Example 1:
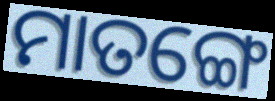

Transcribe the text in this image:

ମାତଙ୍ଗେ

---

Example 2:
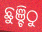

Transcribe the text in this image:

ଛୁଞ୍ଚିଠୁ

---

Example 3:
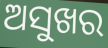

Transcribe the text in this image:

ଅସୁଖର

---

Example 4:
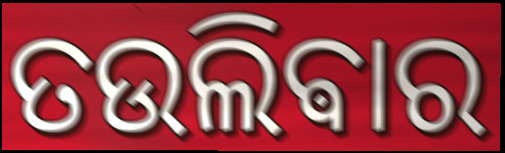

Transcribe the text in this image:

ତଉଲିଵାର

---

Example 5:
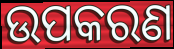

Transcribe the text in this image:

ଉପକରଣ